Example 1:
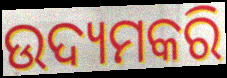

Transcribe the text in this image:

ଉଦ୍ୟମକରି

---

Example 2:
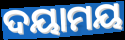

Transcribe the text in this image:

ଦୟାମୟ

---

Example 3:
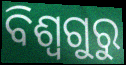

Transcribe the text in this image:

ବିଶ୍ୱଗୁରୁ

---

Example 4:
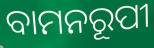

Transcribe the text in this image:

ବାମନରୂପୀ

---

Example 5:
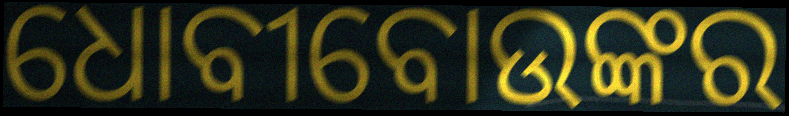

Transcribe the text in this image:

ଧୋବୀବୋଉଙ୍କର